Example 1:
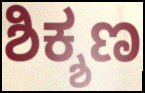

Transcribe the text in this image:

ಶಿಕ್ಶಣ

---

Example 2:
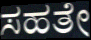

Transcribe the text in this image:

ಸಹತೇ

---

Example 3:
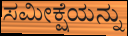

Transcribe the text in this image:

ಸಮೀಕ್ಷೆಯನ್ನು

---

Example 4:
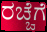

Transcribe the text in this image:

ರಚ್ಚೆಗೆ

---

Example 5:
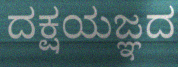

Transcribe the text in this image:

ದಕ್ಷಯಜ್ಞದ